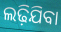
ଲଢ଼ିଯିବା